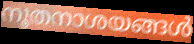
നൂതനാശയങ്ങൾ